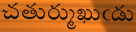
చతుర్ముఖుఁడు